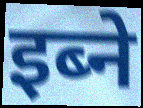
इब्ने